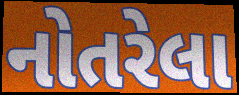
નોતરેલા